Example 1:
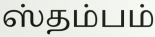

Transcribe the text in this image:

ஸ்தம்பம்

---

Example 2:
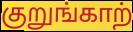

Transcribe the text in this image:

குறுங்காற்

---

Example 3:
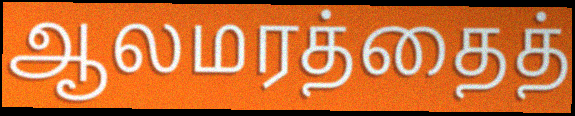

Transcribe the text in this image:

ஆலமரத்தைத்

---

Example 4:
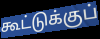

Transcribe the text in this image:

கூட்டுக்குப்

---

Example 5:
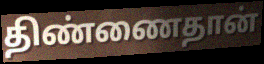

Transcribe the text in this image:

திண்ணைதான்